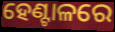
ହେଣ୍ଟାଳରେ